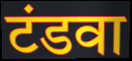
टंडवा